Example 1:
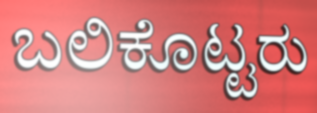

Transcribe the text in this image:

ಬಲಿಕೊಟ್ಟರು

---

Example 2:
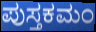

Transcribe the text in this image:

ಪುಸ್ತಕಮಂ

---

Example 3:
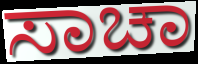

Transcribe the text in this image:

ಸಾಚಾ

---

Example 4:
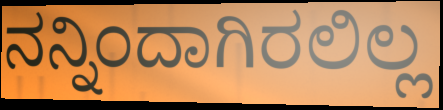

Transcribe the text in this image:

ನನ್ನಿಂದಾಗಿರಲಿಲ್ಲ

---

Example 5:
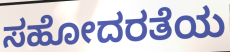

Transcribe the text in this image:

ಸಹೋದರತೆಯ